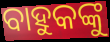
ବାହୁକଙ୍କୁ